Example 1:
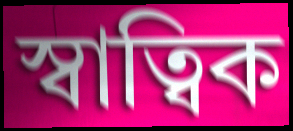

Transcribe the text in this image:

স্বাত্বিক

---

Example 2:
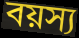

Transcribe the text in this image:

বয়স্য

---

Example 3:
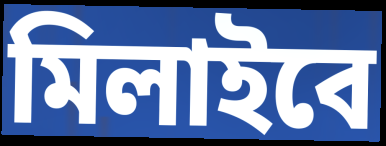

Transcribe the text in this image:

মিলাইবে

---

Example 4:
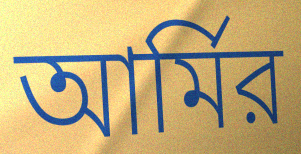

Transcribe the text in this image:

আর্মির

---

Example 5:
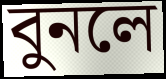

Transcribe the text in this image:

বুনলে